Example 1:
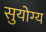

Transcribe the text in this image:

सुयोग्य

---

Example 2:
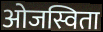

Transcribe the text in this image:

ओजस्विता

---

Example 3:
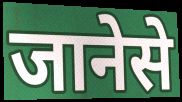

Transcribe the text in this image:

जानेसे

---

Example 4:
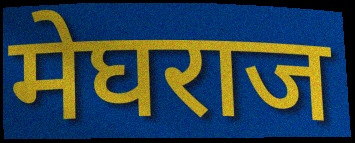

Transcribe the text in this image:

मेघराज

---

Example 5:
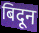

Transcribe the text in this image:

बिदून